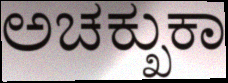
ಅಚಕ್ಖುಕಾ